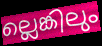
ല്ലെങ്കിലും